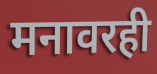
मनावरही